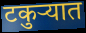
टकुऱ्यात